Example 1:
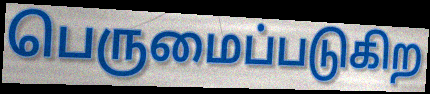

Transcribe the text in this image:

பெருமைப்படுகிற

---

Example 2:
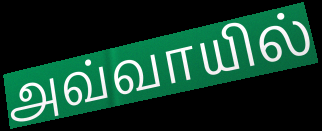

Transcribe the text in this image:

அவ்வாயில்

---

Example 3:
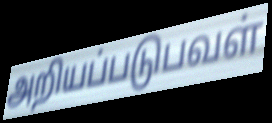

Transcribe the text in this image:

அறியப்படுபவள்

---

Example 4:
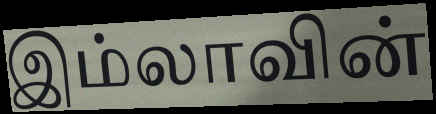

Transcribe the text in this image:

இம்லாவின்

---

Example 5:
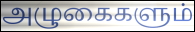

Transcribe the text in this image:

அழுகைகளும்